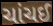
ચાંચઈ